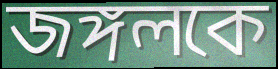
জঙ্গলকে